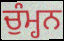
ਚੁੰਮ੍ਹਨ